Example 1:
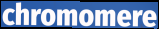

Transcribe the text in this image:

chromomere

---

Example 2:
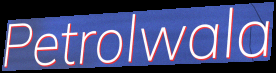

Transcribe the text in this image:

Petrolwala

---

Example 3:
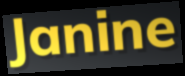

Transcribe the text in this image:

Janine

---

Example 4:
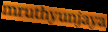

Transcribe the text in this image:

mruthyunjaya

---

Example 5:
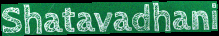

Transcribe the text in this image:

Shatavadhani